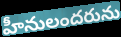
హీనులందరును